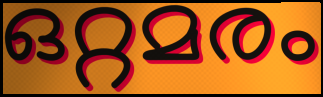
ഒറ്റമരം